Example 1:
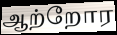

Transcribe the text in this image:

ஆற்றோர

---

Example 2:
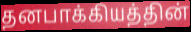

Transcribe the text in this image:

தனபாக்கியத்தின்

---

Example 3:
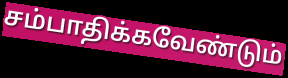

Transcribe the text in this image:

சம்பாதிக்கவேண்டும்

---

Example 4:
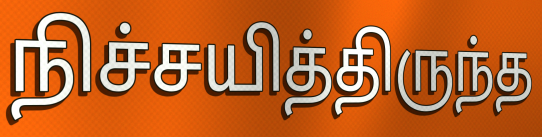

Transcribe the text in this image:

நிச்சயித்திருந்த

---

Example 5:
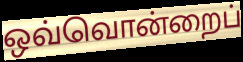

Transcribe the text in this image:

ஒவ்வொன்றைப்